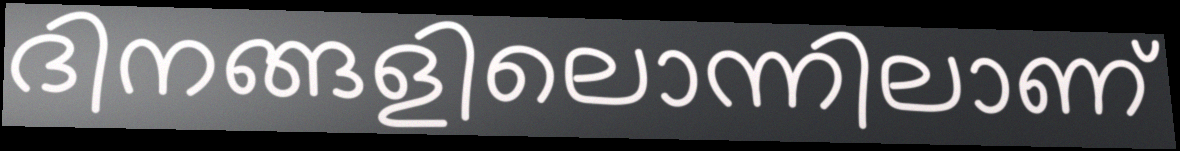
ദിനങ്ങളിലൊന്നിലാണ്